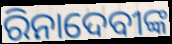
ରିନାଦେବୀଙ୍କ